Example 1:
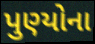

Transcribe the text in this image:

પુણ્યોના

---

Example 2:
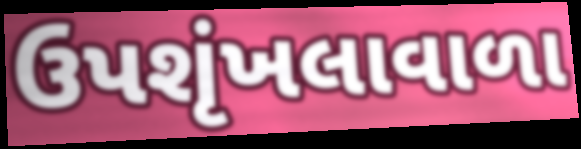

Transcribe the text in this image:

ઉપશૃંખલાવાળા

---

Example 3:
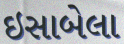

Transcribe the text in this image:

ઇસાબેલા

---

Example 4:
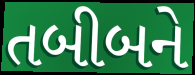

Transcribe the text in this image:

તબીબને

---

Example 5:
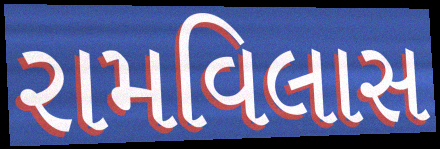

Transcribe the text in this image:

રામવિલાસ